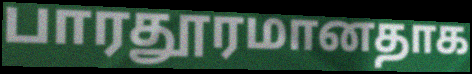
பாரதூரமானதாக